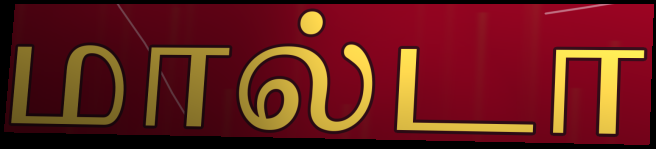
மால்டா